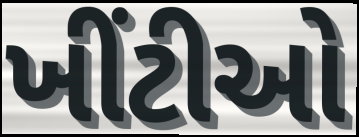
ખીંટીઓ